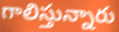
గాలిస్తున్నారు